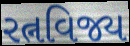
રત્નવિજ્ય